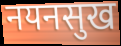
नयनसुख